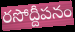
రసోద్దీపనం